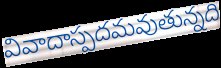
వివాదాస్పదమవుతున్నది